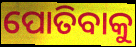
ପୋତିବାକୁ